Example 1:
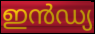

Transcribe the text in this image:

ഇൻഡ്യ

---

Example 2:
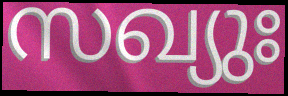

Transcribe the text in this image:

സഖ്യുഃ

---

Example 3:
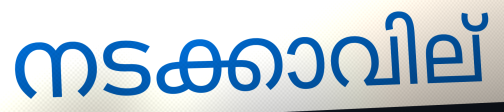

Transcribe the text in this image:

നടക്കാവില്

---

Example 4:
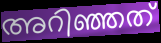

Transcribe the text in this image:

അറിഞ്ഞത്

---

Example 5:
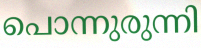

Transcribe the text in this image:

പൊന്നുരുന്നി